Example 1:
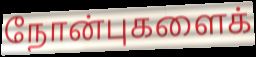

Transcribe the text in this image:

நோன்புகளைக்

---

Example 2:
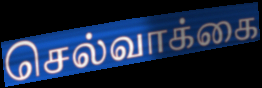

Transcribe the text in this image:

செல்வாக்கை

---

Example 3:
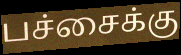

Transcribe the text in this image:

பச்சைக்கு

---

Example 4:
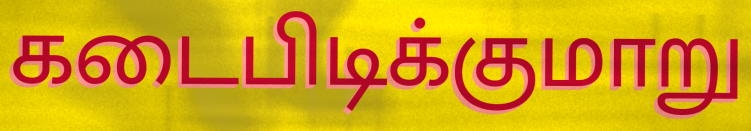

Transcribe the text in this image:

கடைபிடிக்குமாறு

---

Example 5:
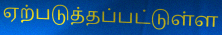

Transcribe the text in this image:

ஏற்படுத்தப்பட்டுள்ள